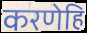
करणेहि